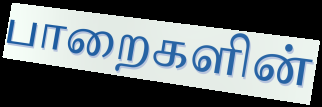
பாறைகளின்